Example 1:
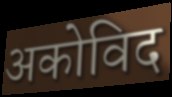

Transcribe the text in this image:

अकोविद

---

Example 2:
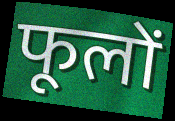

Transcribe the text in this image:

फूलों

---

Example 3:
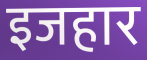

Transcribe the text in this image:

इजहार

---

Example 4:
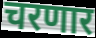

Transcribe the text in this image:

चरणार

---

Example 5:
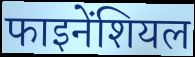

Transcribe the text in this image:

फाइनेंशियल